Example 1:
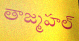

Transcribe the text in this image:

తాజ్మహల్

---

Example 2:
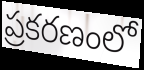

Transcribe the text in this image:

ప్రకరణంలో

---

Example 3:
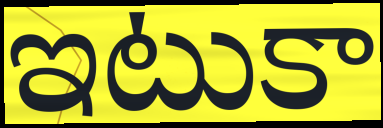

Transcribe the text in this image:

ఇటుకా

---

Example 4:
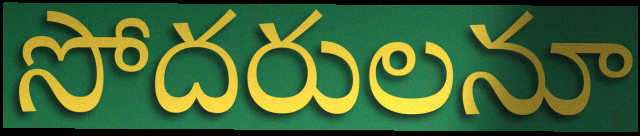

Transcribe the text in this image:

సోదరులనూ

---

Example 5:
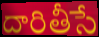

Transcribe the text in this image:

దారితీసే